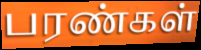
பரண்கள்